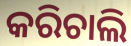
କରିଚାଲି